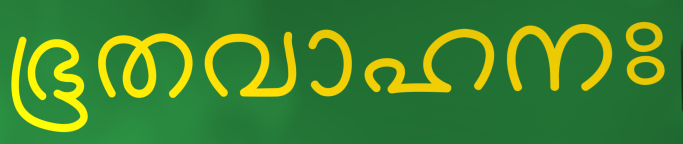
ഭൂതവാഹനഃ